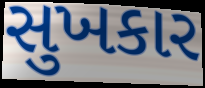
સુખકાર